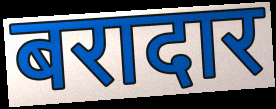
बरादार